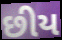
છીય